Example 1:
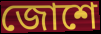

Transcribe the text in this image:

জোশে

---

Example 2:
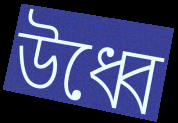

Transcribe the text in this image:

উধ্বে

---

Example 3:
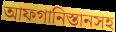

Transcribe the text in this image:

আফগানিস্তানসহ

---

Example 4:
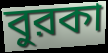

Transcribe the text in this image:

বুরকা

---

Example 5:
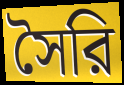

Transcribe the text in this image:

সৈরি